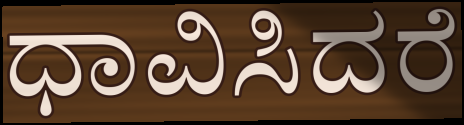
ಧಾವಿಸಿದರೆ